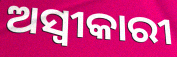
ଅସ୍ୱୀକାରୀ